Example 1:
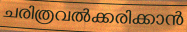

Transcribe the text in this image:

ചരിത്രവൽക്കരിക്കാൻ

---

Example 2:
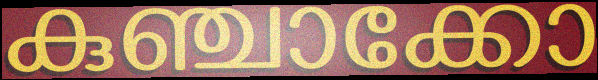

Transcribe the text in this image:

കുഞ്ചാക്കോ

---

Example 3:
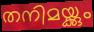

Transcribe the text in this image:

തനിമയ്ക്കും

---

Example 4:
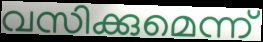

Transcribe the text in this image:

വസിക്കുമെന്ന്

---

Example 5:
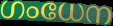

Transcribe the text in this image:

ഗംധേന